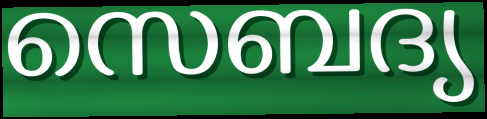
സെബദ്യ